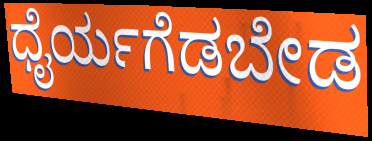
ಧೈರ್ಯಗೆಡಬೇಡ